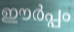
ഈർപ്പം